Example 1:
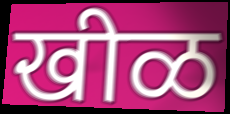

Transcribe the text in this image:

खीळ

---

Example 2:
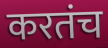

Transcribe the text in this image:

करतंच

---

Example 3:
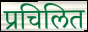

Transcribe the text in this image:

प्रचिलित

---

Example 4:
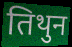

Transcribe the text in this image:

तिथुन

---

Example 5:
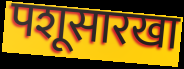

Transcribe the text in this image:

पशूसारखा